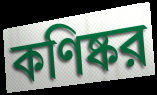
কণিষ্কর